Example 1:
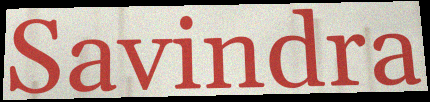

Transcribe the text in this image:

Savindra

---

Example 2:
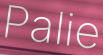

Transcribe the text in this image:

Palie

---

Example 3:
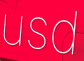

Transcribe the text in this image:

usd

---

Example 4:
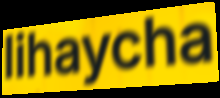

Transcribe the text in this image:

lihaycha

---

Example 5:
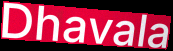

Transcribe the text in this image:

Dhavala